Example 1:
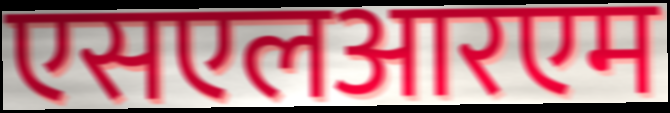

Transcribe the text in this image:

एसएलआरएम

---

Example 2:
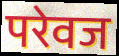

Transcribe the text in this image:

परेवज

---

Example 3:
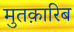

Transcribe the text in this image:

मुतक़ारिब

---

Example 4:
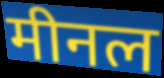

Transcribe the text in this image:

मीनल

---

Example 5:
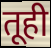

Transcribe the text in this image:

तूही